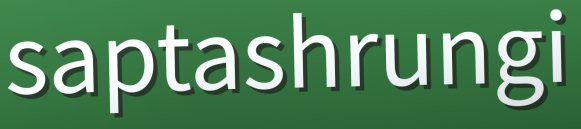
saptashrungi